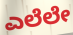
ಎಲೆಲೇ